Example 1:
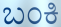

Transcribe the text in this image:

ಬಂಕಿ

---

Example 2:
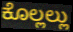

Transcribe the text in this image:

ಕೊಲ್ಲಲ್ಲು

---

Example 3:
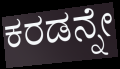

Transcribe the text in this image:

ಕರಡನ್ನೇ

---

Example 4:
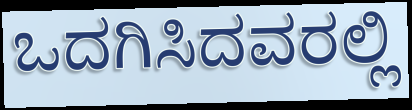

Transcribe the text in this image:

ಒದಗಿಸಿದವರಲ್ಲಿ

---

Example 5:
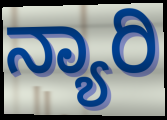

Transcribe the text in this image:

ನ್ಯಾರಿ